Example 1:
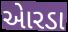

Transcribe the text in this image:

એારડા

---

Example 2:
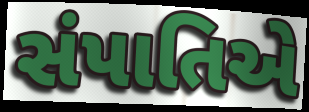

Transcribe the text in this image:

સંપાતિએ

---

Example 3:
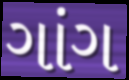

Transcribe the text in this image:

ગાંગ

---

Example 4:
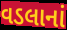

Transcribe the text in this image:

વડલાનાં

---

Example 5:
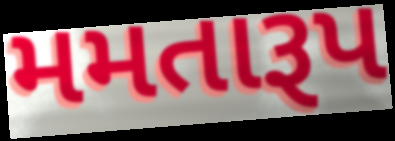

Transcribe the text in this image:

મમતારૂપ